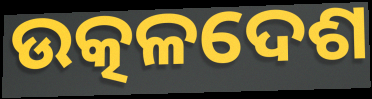
ଉତ୍କଳଦେଶ